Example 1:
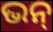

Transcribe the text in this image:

ଭନ୍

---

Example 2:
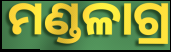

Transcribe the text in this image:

ମଣ୍ଡଳାଗ୍ର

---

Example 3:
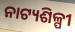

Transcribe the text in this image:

ନାଟ୍ୟଶିଳ୍ପୀ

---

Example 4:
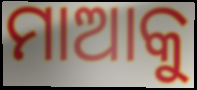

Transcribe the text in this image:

ମାଆକୁ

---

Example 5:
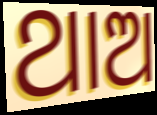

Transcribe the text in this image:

ଥାଅ